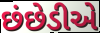
છંછેડીએ